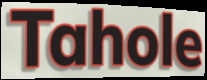
Tahole